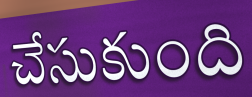
చేసుకుంది